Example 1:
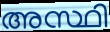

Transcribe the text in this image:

അസ്ഥി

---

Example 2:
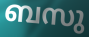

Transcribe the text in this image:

ബസു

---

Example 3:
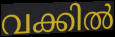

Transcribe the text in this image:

വക്കിൽ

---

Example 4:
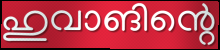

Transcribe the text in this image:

ഹുവാങിന്റെ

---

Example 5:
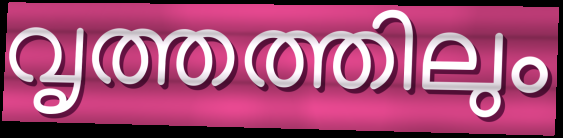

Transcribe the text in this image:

വൃത്തത്തിലും